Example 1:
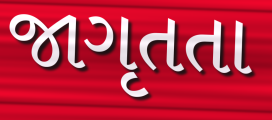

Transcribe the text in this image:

જાગૃતતા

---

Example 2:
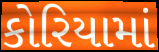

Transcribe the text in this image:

કોરિયામાં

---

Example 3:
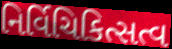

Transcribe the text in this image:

નિર્વિચિકિત્સત્વ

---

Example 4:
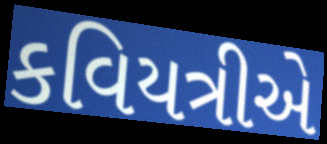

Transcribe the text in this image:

કવિયત્રીએ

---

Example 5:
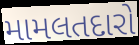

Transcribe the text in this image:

મામલતદારો